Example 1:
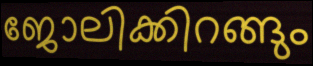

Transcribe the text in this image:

ജോലിക്കിറങ്ങും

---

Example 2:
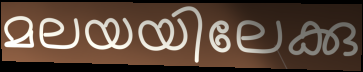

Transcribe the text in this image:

മലയയിലേക്കു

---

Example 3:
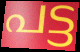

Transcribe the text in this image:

പട്ട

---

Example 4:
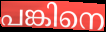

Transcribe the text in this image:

പങ്കിനെ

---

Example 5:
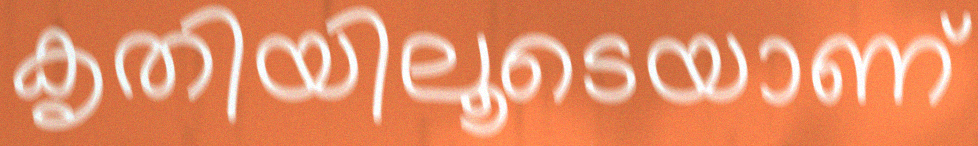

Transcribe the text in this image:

കൃതിയിലൂടെയാണ്